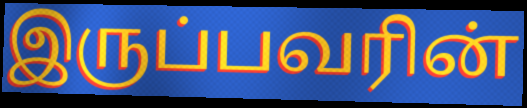
இருப்பவரின்